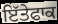
ਇੱਤੇਫਾਕ